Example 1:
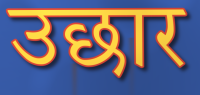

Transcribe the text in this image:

उछार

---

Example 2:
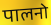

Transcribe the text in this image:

पालनो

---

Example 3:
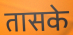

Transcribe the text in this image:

तासके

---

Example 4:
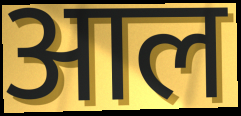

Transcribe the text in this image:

आल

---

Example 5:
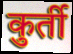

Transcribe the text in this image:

कुर्ती